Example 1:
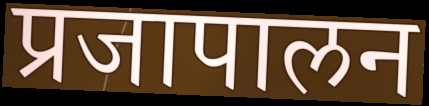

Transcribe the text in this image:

प्रजापालन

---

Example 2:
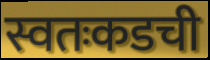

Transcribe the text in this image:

स्वतःकडची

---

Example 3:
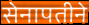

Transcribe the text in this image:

सेनापतीने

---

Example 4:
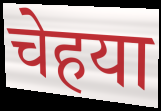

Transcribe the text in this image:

चेहया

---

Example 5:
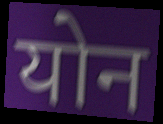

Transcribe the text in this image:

योन